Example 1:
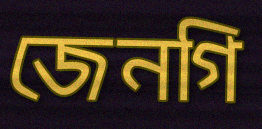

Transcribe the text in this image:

জেনগি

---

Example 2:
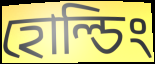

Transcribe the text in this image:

হোল্ডিং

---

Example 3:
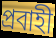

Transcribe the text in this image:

প্রবাহী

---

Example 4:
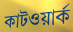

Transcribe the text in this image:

কাটওয়ার্ক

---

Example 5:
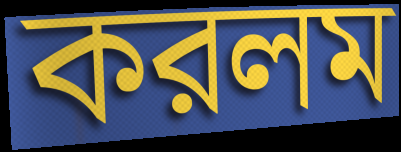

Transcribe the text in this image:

করলম